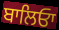
ਬਾਲਿਓਾ